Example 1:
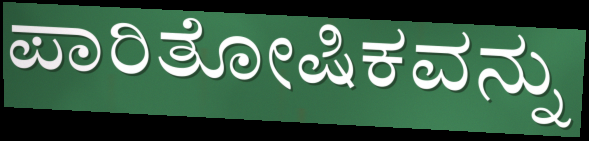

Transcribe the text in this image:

ಪಾರಿತೋಷಿಕವನ್ನು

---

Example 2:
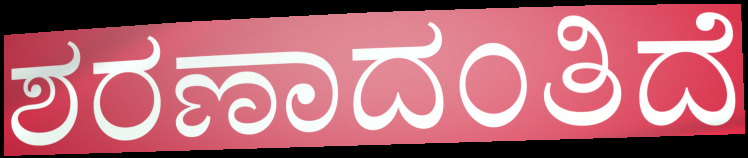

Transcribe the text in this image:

ಶರಣಾದಂತಿದೆ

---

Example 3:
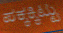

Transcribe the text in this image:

ಪಕ್ಕಕ್ಕಿಟ್ಟು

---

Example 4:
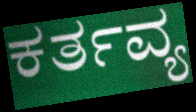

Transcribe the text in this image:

ಕರ್ತವ್ಯ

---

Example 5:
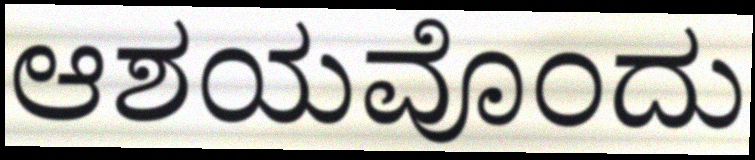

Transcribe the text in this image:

ಆಶಯವೊಂದು